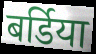
बर्डिया